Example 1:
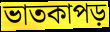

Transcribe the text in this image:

ভাতকাপড়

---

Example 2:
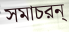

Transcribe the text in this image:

সমাচরন্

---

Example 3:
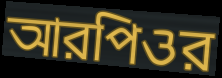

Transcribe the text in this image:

আরপিওর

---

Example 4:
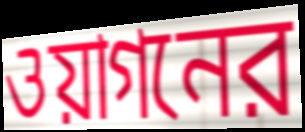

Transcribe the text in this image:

ওয়াগনের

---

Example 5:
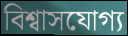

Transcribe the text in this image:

বিশ্বাসযোগ্য